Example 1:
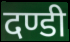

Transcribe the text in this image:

दण्डी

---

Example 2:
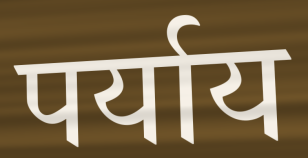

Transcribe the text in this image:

पर्याय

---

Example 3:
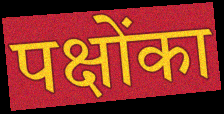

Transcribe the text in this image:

पक्षोंका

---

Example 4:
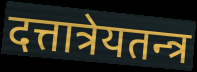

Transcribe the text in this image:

दत्तात्रेयतन्त्र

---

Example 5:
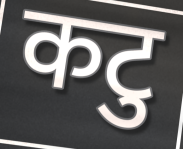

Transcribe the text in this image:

कटु